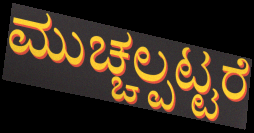
ಮುಚ್ಚಲ್ಪಟ್ಟರೆ